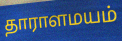
தாராளமயம்